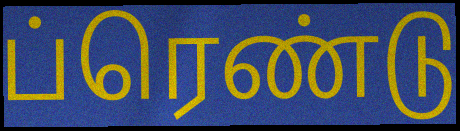
ப்ரெண்டு